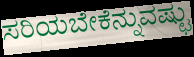
ಸರಿಯಬೇಕೆನ್ನುವಷ್ಟು